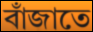
বাঁজাতে